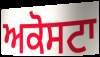
ਅਕੋਸਟਾ